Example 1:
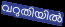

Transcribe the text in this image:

വറുതിയിൽ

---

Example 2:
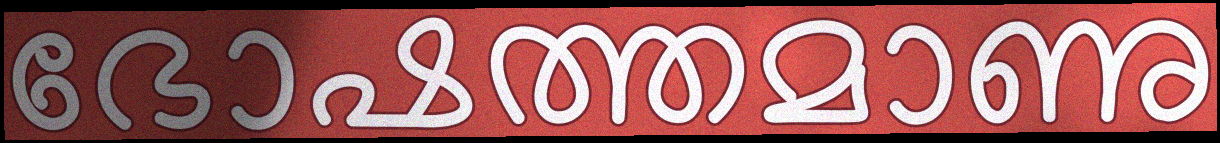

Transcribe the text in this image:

ഭോഷത്തമാണു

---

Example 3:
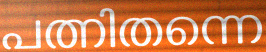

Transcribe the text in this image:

പത്നിതന്നെ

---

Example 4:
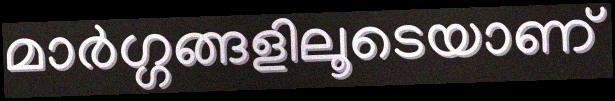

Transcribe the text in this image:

മാർഗ്ഗങ്ങളിലൂടെയാണ്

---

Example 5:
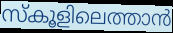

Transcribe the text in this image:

സ്കൂളിലെത്താൻ